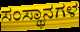
ಸಂಸ್ಥಾನಗಳ